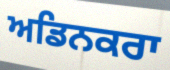
ਅਡਿਨਕਰਾ